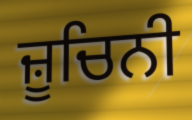
ਜ਼ੂਚਿਨੀ